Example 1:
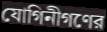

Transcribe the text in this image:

যোগিনীগণের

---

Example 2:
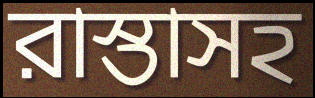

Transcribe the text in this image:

রাস্তাসহ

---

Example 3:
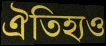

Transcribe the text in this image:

ঐতিহ্যও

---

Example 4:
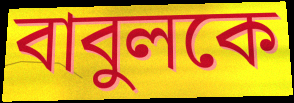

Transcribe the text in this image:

বাবুলকে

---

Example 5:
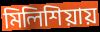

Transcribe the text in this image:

মিলিশিয়ায়